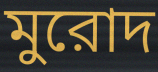
মুরোদ